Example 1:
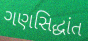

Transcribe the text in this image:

ગણસિદ્ધાંત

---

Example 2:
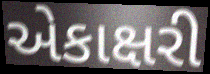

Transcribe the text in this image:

એકાક્ષરી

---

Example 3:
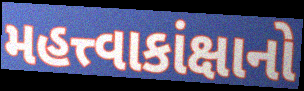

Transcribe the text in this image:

મહત્ત્વાકાંક્ષાનો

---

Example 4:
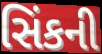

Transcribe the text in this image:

સિંકની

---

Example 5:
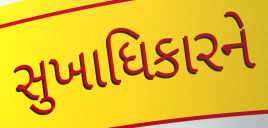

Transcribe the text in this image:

સુખાધિકારને